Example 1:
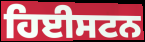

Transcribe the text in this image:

ਹਿਈਸਟਨ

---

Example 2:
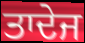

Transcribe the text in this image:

ਤਾਦੇਜ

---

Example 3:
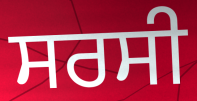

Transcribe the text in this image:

ਸਰਸੀ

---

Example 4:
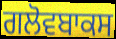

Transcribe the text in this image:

ਗਲੋਵਬਾਕਸ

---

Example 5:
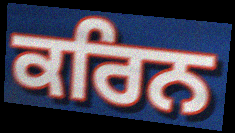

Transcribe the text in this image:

ਕਰਿਨ